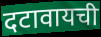
दटावायची